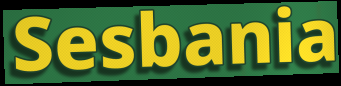
Sesbania